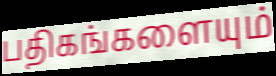
பதிகங்களையும்